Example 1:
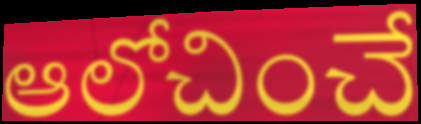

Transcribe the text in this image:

ఆలోచించే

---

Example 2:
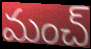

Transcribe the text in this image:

మంచ్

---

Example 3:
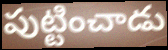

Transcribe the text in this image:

పుట్టించాడు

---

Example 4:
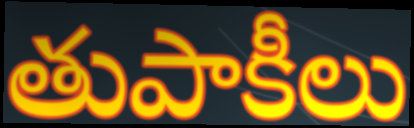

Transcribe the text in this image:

తుపాకీలు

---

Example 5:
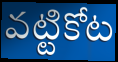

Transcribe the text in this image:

వట్టికోట